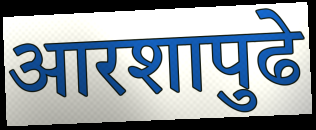
आरशापुढे